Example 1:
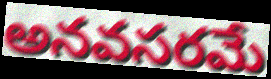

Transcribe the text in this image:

అనవసరమే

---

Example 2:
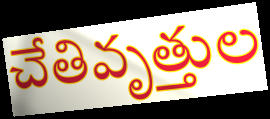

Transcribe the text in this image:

చేతివృత్తుల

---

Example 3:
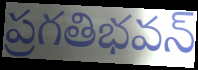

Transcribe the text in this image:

ప్రగతిభవన్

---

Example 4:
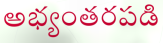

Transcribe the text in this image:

అభ్యంతరపడి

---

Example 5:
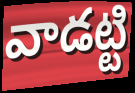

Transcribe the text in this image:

వాడట్టి